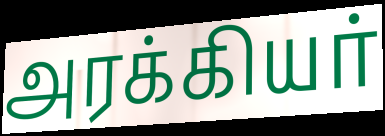
அரக்கியர்